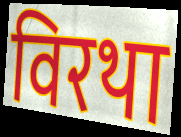
विरथा